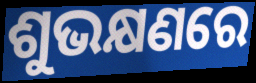
ଶୁଭକ୍ଷଣରେ